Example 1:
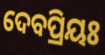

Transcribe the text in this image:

ଦେବପ୍ରିୟଃ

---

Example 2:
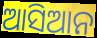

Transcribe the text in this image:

ଆସିଆନ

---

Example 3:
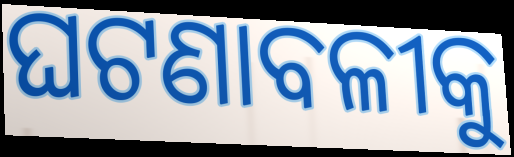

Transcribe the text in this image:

ଘଟଣାବଳୀକୁ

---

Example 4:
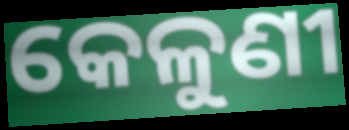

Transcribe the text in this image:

କେଳୁଣୀ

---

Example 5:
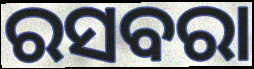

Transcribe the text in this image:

ରସବରା